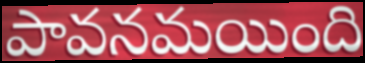
పావనమయింది